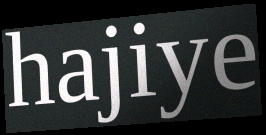
hajiye